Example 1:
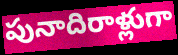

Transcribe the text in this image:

పునాదిరాళ్లుగా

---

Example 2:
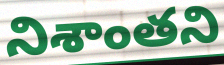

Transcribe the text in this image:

నిశాంతని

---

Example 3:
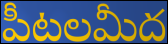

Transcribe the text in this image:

పీటలమీద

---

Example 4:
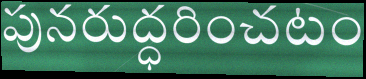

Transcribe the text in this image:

పునరుద్ధరించటం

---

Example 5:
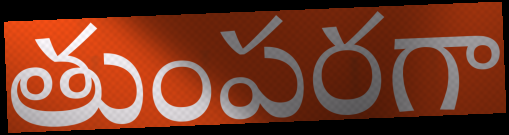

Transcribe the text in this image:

తుంపరగా